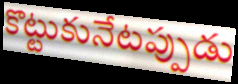
కొట్టుకునేటప్పుడు